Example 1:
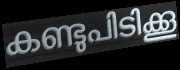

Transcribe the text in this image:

കണ്ടുപിടിക്കൂ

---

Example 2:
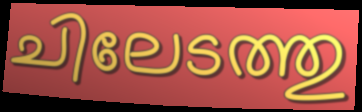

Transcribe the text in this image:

ചിലേടത്തു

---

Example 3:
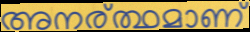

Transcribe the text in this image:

അനര്ത്ഥമാണ്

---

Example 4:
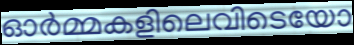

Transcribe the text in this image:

ഓർമ്മകളിലെവിടെയോ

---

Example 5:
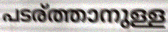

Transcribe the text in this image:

പടര്ത്താനുള്ള